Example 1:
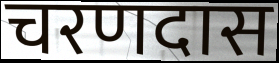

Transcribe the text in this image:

चरणदास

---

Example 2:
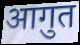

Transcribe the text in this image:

आगुत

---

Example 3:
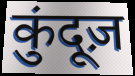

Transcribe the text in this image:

कुंदूज़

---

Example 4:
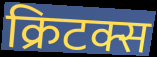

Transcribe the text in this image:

क्रिटक्स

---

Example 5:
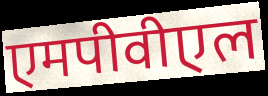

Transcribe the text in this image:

एमपीवीएल